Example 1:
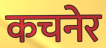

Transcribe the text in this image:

कचनेर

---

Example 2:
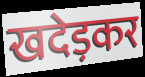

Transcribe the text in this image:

खदेड़कर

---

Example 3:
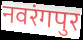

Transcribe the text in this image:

नवरंगपुर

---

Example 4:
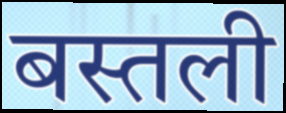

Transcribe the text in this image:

बस्तली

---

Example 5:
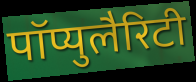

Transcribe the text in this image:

पॉप्युलैरिटी